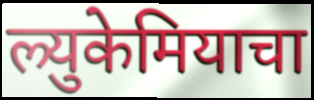
ल्युकेमियाचा